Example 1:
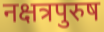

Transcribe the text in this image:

नक्षत्रपुरुष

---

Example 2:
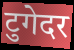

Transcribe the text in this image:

टुगेदर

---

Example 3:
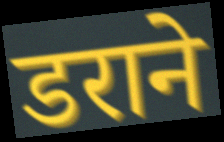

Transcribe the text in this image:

डराने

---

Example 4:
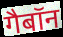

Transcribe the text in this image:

गैबॉन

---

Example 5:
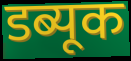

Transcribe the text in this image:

डब्यूक